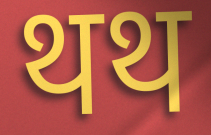
थथ